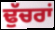
ਢੁੱਚਰਾਂ